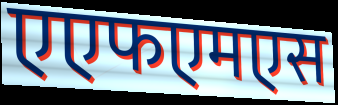
एएफएमएस